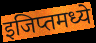
इजिप्तमध्ये